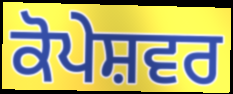
ਕੋਪੇਸ਼ਵਰ